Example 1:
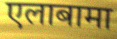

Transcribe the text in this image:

एलाबामा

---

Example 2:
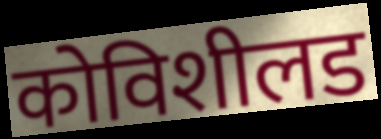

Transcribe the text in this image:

कोविशीलड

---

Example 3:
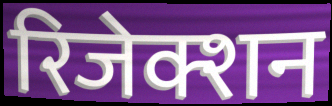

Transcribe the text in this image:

रिजेक्शन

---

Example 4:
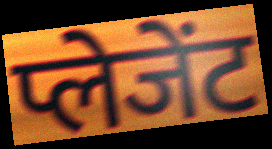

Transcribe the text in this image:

प्लेजेंट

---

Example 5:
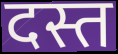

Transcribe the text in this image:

दस्त